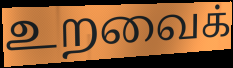
உறவைக்